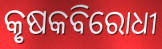
କୃଷକବିରୋଧୀ